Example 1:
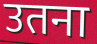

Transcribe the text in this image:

उतना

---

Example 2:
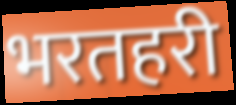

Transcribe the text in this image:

भरतहरी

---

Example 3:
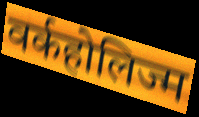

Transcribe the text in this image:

वर्कहोलिज्म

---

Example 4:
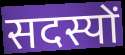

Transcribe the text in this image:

सदस्यों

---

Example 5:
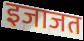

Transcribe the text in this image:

इजाजत